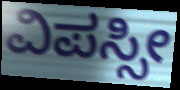
ವಿಪಸ್ಸೀ